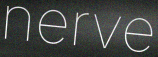
nerve